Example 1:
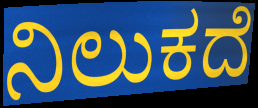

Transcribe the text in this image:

ನಿಲುಕದೆ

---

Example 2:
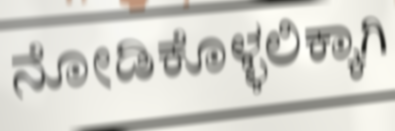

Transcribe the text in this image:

ನೋಡಿಕೊಳ್ಳಲಿಕ್ಕಾಗಿ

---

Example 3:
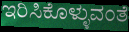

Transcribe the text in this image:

ಇರಿಸಿಕೊಳ್ಳುವಂತೆ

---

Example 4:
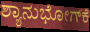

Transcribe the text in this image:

ಶ್ಯಾನುಭೋಗ್‌ಕೆ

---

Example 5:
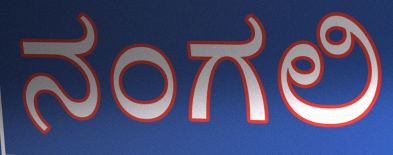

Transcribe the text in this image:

ನಂಗಲಿ